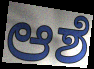
ಆಶೆ